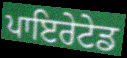
ਪਾਇਰੇਟੇਡ